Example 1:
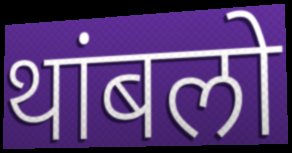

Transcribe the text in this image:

थांबलो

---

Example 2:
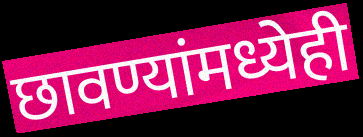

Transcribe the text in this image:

छावण्यांमध्येही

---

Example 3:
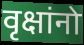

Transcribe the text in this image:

वृक्षांनो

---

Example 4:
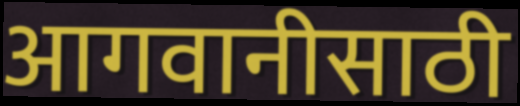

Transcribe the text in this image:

आगवानीसाठी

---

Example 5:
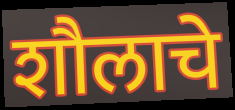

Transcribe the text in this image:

शौलाचे